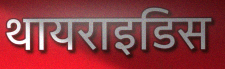
थायराइडिस